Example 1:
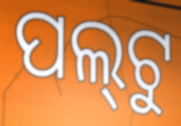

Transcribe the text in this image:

ପଲ୍‍ଟୁ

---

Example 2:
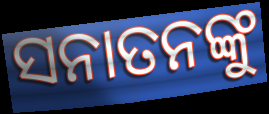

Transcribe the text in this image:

ସନାତନଙ୍କୁ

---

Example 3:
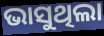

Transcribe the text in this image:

ଭାସୁଥିଲା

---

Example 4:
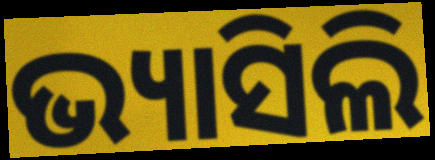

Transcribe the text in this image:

ଭ୍ୟାସିଲି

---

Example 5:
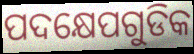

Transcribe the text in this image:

ପଦକ୍ଷେପଗୁଡିକ